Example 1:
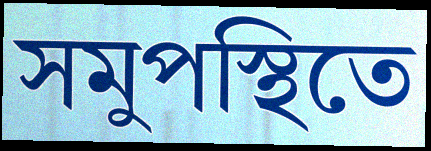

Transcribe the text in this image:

সমুপস্থিতে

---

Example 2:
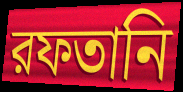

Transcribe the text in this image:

রফতানি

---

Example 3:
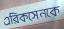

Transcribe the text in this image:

এরিকসেনকে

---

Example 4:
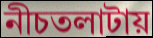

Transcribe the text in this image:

নীচতলাটায়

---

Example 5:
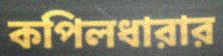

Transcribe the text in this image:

কপিলধারার